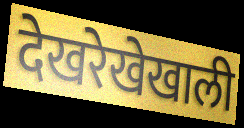
देखरेखेखाली